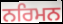
ਨਰਿਮਨ